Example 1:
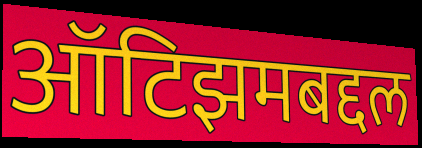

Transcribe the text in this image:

ऑटिझमबद्दल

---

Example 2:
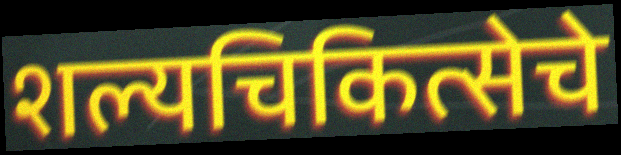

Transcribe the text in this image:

शल्यचिकित्सेचे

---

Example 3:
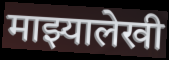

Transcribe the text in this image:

माझ्यालेखी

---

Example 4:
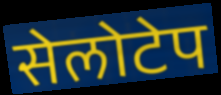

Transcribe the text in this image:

सेलोटेप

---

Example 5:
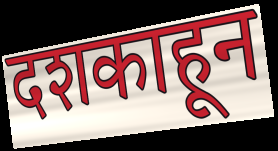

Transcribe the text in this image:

दशकाहून